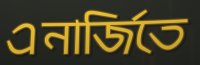
এনার্জিতে